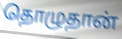
தொழுதான்